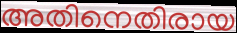
അതിനെതിരായ